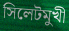
সিলেটমুখী